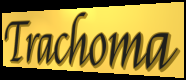
Trachoma